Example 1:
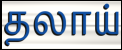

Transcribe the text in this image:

தலாய்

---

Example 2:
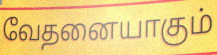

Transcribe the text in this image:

வேதனையாகும்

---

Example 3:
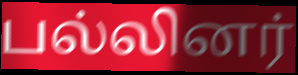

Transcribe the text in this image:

பல்லினர்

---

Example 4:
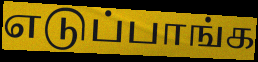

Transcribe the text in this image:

எடுப்பாங்க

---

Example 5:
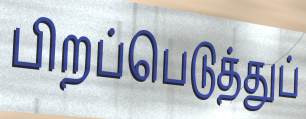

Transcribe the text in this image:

பிறப்பெடுத்துப்